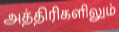
அத்திரிகளிலும்